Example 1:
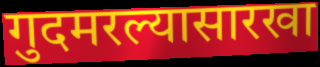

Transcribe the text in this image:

गुदमरल्यासारखा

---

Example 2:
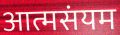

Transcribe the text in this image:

आत्मसंयम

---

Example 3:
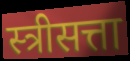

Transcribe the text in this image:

स्त्रीसत्ता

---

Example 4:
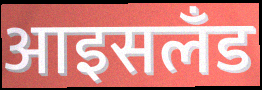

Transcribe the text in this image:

आइसलँड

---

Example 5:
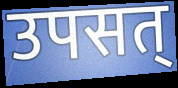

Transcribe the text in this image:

उपसत्